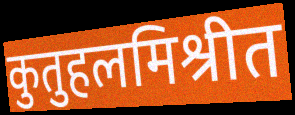
कुतुहलमिश्रीत